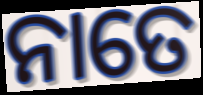
ନାତେ